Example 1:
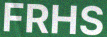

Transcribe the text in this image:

FRHS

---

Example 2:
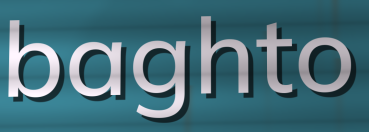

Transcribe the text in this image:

baghto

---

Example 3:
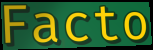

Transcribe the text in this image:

Facto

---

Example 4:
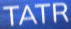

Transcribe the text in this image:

TATR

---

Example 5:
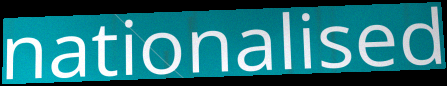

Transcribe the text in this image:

nationalised